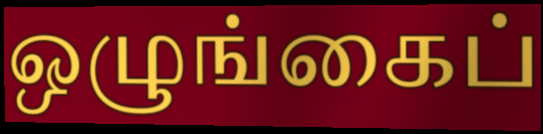
ஒழுங்கைப்